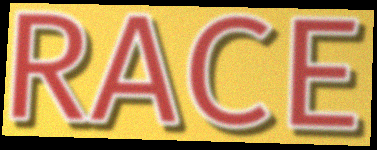
RACE